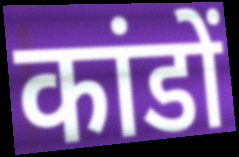
कांडों